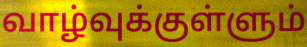
வாழ்வுக்குள்ளும்